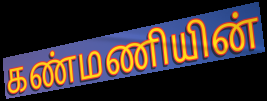
கண்மணியின்